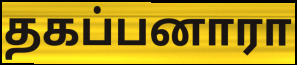
தகப்பனாரா